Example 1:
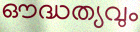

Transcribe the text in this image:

ഔദ്ധത്യവും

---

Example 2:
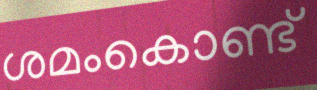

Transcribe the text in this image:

ശമംകൊണ്ട്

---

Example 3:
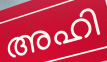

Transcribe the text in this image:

അഹി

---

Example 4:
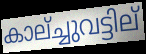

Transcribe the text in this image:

കാല്ച്ചുവട്ടില്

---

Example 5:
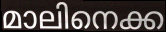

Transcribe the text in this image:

മാലിനെക്ക